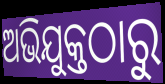
ଅଭିଯୁକ୍ତଠାରୁ